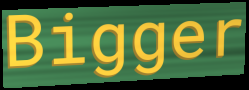
Bigger